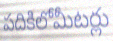
పదికిలోమీటర్లు